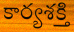
కార్యశక్తి